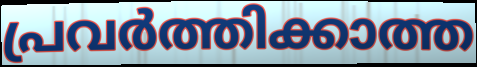
പ്രവർത്തിക്കാത്ത